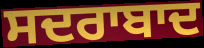
ਸਦਰਾਬਾਦ